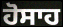
ਹੋਸਾਹ